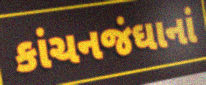
કાંચનજંઘાનાં